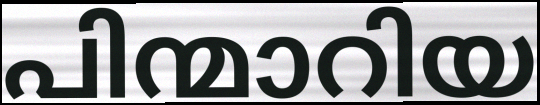
പിന്മാറിയ